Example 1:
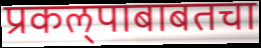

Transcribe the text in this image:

प्रकल्पाबाबतचा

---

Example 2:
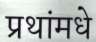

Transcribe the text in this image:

प्रथांमधे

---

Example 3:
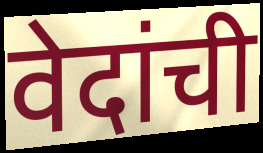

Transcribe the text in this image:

वेदांची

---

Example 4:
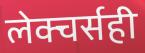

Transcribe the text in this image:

लेक्चर्सही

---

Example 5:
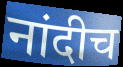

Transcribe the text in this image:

नांदीच